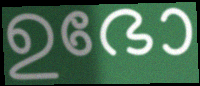
ഉഭോ